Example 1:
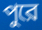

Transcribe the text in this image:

পুরে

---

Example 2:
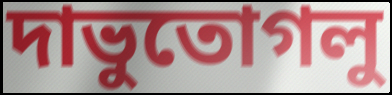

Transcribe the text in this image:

দাভুতোগলু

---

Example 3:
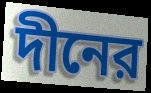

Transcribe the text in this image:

দীনের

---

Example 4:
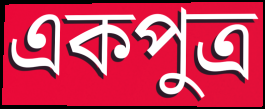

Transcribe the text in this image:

একপুত্র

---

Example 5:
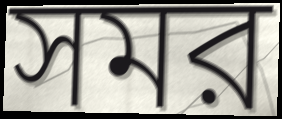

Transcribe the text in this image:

সমর